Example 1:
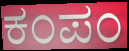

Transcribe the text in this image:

ಕಂಪಂ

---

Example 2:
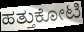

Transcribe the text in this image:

ಹತ್ತುಕೋಟಿ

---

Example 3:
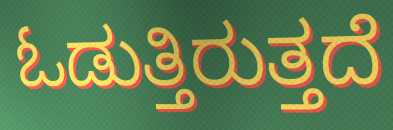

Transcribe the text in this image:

ಓಡುತ್ತಿರುತ್ತದೆ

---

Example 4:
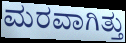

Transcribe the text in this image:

ಮರವಾಗಿತ್ತು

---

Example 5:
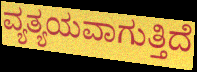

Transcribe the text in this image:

ವ್ಯತ್ಯಯವಾಗುತ್ತಿದೆ